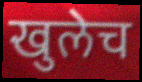
खुलेच